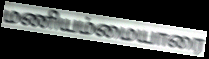
மணியம்மையாரை